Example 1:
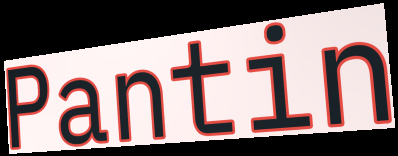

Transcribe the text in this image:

Pantin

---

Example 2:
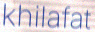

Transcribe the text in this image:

khilafat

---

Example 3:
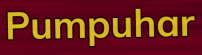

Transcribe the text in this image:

Pumpuhar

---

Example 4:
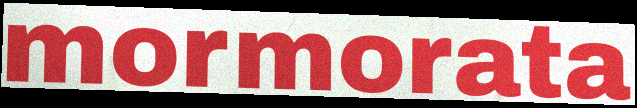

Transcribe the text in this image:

mormorata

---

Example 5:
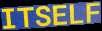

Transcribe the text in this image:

ITSELF